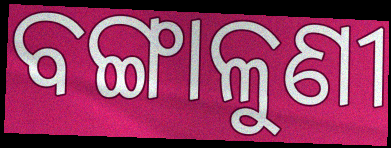
ବଙ୍ଗାଳୁଣୀ